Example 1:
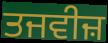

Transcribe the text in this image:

ਤਜਵੀਜ਼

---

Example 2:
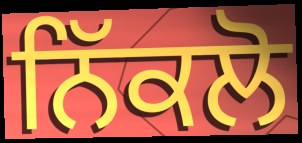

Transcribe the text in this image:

ਨਿੱਕਲੋ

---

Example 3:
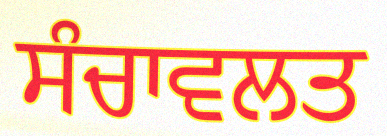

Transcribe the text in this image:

ਸੰਚਾਵਲਤ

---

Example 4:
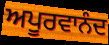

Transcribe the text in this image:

ਅਪੂਰਵਾਨੰਦ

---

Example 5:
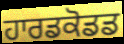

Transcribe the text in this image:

ਹਾਰਡਕੋਡਡ